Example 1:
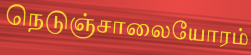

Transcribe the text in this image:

நெடுஞ்சாலையோரம்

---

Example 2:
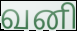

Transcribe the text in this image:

வனி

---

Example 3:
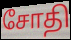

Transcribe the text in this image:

சோதி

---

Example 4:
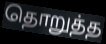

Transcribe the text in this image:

தொறுத்த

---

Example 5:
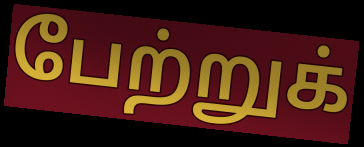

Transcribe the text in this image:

பேற்றுக்